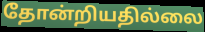
தோன்றியதில்லை